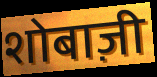
शोबाज़ी